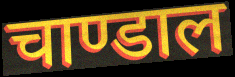
चाण्डाल